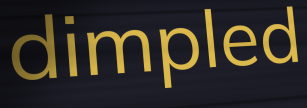
dimpled